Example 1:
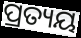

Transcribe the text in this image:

ପ୍ରତ୍ୟୟ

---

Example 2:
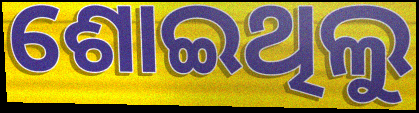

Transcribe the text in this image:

ଶୋଇଥିଲୁ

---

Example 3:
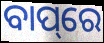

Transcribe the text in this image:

ବାପ୍‌ରେ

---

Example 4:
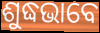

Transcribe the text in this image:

ଶୁଦ୍ଧଭାବେ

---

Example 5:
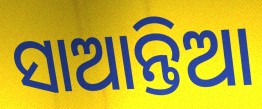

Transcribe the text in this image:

ସାଆନ୍ତିଆ